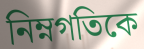
নিম্নগতিকে